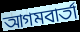
আগমবার্তা